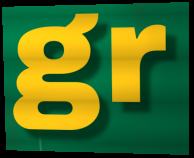
gr